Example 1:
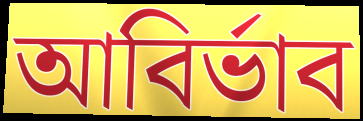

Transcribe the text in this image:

আবির্ভাব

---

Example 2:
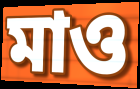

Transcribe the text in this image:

মাও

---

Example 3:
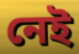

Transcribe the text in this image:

নেই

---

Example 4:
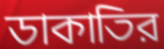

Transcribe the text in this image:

ডাকাতির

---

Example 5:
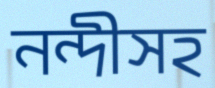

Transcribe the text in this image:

নন্দীসহ